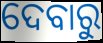
ଦେବାରୁ